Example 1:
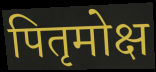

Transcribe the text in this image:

पितृमोक्ष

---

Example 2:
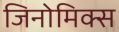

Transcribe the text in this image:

जिनोमिक्स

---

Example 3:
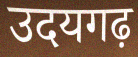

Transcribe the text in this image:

उदयगढ़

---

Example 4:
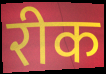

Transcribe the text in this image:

रीक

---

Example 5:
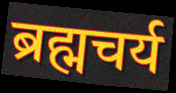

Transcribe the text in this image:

ब्रह्मचर्य